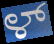
ಳ್